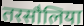
तरसौलिया